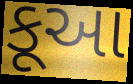
કૂઆ